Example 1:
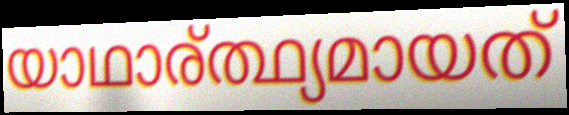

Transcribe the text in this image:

യാഥാര്ത്ഥ്യമായത്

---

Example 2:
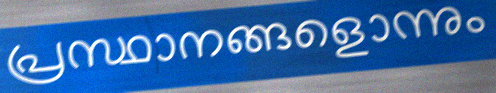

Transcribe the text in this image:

പ്രസ്ഥാനങ്ങളൊന്നും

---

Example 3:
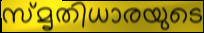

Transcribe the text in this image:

സ്മൃതിധാരയുടെ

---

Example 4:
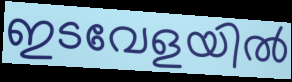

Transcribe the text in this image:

ഇടവേളയിൽ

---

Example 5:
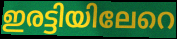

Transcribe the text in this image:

ഇരട്ടിയിലേറെ